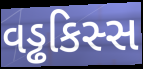
વડ્ઢકિસ્સ